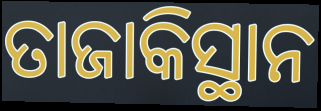
ତାଜାକିସ୍ଥାନ